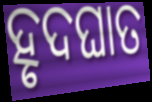
ହୃଦଘାତ